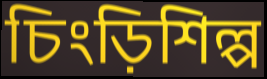
চিংড়িশিল্প